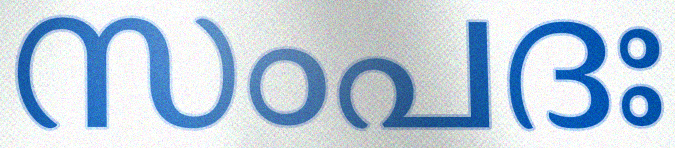
സംപദഃ